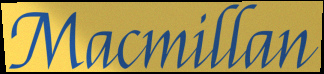
Macmillan